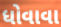
ધોવાવા